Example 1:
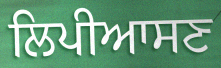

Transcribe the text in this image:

ਲਿਪੀਆਸਣ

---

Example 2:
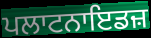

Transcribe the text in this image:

ਪਲਾਟਨਾਇਡਜ਼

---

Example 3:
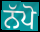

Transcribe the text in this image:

ਨੱਪੋ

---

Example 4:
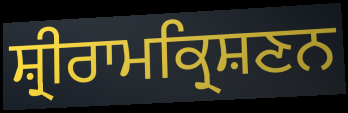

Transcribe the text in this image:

ਸ਼੍ਰੀਰਾਮਕ੍ਰਿਸ਼ਣਨ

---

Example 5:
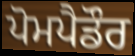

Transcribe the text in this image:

ਪੋਮਪੈਡੌਰ